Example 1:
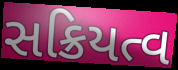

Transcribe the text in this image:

સક્રિયત્વ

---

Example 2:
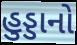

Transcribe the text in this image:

હુડ્ડાનો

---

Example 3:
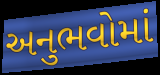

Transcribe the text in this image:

અનુભવોમાં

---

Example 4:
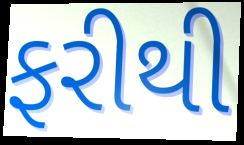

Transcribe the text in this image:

ફરીથી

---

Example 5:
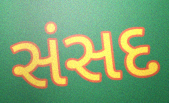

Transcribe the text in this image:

સંસદ